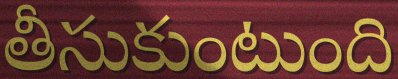
తీసుకుంటుంది